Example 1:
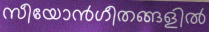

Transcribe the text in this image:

സീയോൻഗീതങ്ങളിൽ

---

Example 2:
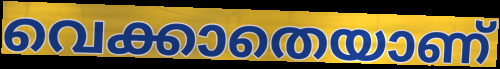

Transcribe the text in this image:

വെക്കാതെയാണ്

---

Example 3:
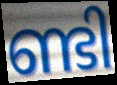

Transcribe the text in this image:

ണ്ടി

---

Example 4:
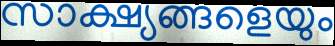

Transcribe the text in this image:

സാക്ഷ്യങ്ങളെയും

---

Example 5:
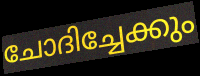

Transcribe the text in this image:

ചോദിച്ചേക്കും